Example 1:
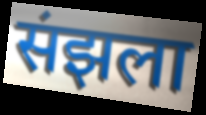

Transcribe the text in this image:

संझला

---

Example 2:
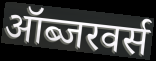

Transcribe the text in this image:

ऑब्जरवर्स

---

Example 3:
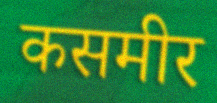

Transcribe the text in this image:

कसमीर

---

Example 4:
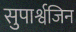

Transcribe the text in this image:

सुपार्श्वजिन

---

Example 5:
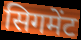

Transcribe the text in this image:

सिगमेंट